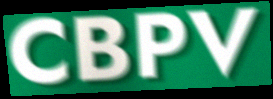
CBPV